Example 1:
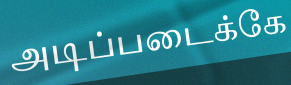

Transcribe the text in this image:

அடிப்படைக்கே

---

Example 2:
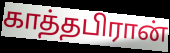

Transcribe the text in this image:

காத்தபிரான்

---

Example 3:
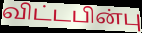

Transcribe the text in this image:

விட்டபின்பு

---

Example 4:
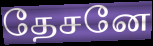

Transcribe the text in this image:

தேசனே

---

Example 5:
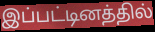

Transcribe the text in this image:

இப்பட்டினத்தில்